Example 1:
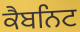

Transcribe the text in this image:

ਕੈਬਨਿਟ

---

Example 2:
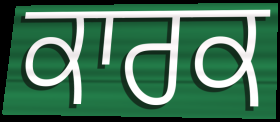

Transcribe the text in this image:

ਕਾਰਕ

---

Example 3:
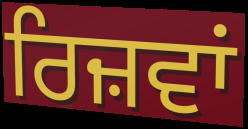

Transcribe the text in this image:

ਰਿਜ਼ਵਾਂ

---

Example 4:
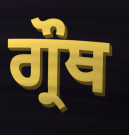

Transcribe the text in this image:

ਗ੍ਰੌਥ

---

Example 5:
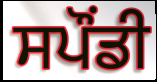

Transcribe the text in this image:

ਸਪੌਂਡੀ